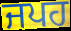
ਜਪਹ